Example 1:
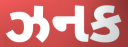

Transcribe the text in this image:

ઝનક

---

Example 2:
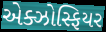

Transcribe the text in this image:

એક્ઝોસ્ફિયર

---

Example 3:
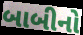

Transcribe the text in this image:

બાબીનો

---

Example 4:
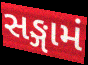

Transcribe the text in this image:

સઙ્ગામં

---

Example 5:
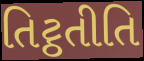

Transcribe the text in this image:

તિટ્ઠતીતિ